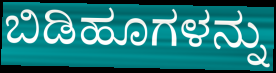
ಬಿಡಿಹೂಗಳನ್ನು